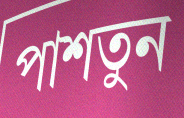
পাশতুন